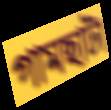
গামছাটা